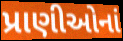
પ્રાણીઓનાં